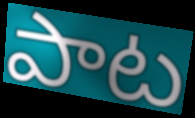
పాట